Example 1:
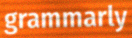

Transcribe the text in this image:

grammarly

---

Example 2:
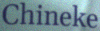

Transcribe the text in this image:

Chineke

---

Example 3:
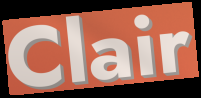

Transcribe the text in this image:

Clair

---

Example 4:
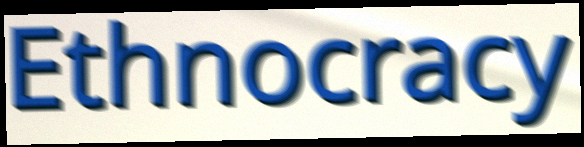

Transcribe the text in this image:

Ethnocracy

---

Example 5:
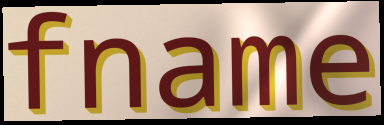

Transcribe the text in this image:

fname